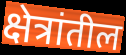
क्षेत्रांतील